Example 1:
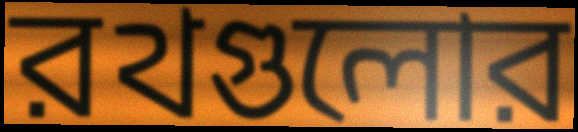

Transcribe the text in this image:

রথগুলোর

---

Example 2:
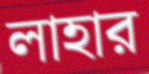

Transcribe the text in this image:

লাহার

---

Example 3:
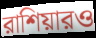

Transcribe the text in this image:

রাশিয়ারও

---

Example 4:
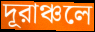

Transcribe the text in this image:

দূরাঞ্চলে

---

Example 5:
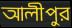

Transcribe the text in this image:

আলীপুর